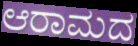
ಆರಾಮದ